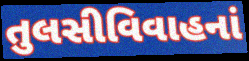
તુલસીવિવાહનાં